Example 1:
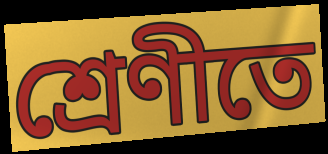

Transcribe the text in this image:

শ্রেণীতে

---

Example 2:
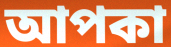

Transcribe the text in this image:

আপকা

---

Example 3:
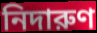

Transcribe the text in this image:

নিদারুণ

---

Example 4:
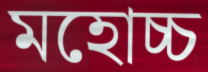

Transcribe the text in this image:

মহোচ্চ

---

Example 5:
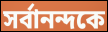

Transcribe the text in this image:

সর্বানন্দকে